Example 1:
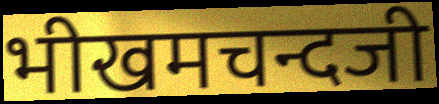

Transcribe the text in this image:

भीखमचन्दजी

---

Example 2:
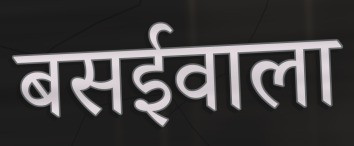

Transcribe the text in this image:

बसईवाला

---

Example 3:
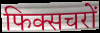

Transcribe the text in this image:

फिक्सचरों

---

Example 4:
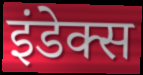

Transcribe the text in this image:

इंडेक्स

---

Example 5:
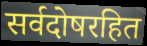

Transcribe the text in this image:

सर्वदोषरहित